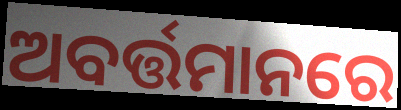
ଅବର୍ତ୍ତମାନରେ